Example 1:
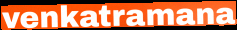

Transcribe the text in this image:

venkatramana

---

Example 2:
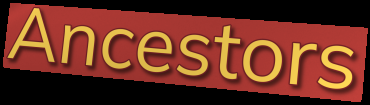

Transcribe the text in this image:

Ancestors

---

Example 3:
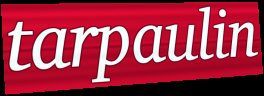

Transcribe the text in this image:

tarpaulin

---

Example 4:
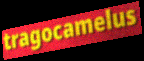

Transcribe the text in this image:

tragocamelus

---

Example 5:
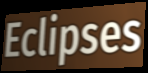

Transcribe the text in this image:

Eclipses